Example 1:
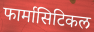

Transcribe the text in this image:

फार्मासिटिकल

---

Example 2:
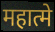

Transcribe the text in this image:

महात्मे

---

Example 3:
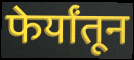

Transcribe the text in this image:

फेर्यांतून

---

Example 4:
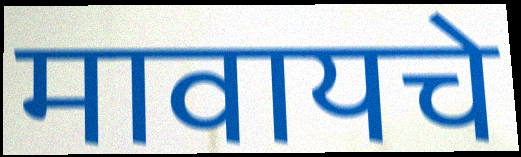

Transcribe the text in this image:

मावायचे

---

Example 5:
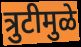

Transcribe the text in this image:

त्रुटीमुळे